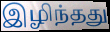
இழிந்தது